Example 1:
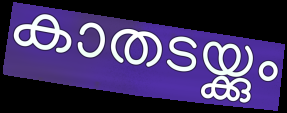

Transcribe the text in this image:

കാതടയ്ക്കും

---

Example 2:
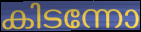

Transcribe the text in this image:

കിടന്നോ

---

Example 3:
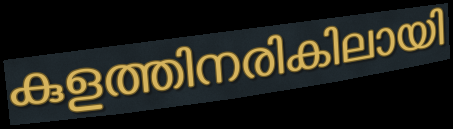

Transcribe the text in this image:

കുളത്തിനരികിലായി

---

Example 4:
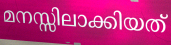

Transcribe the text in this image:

മനസ്സിലാക്കിയത്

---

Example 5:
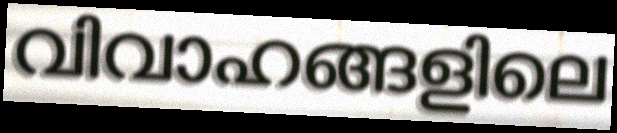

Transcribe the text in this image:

വിവാഹങ്ങളിലെ